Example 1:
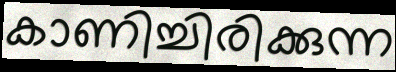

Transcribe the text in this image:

കാണിച്ചിരിക്കുന്ന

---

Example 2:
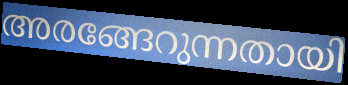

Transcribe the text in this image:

അരങ്ങേറുന്നതായി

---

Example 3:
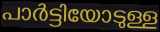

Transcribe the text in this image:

പാർട്ടിയോടുള്ള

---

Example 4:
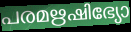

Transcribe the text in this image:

പരമഋഷിഭ്യോ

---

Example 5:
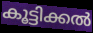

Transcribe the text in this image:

കൂട്ടിക്കൽ